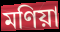
মণিয়া